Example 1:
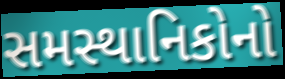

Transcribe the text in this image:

સમસ્થાનિકોનો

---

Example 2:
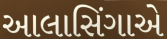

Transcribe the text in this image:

આલાસિંગાએ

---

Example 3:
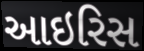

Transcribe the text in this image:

આઇરિસ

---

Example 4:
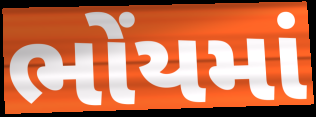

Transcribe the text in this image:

ભોંયમાં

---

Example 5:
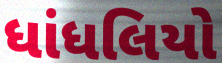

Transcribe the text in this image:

ધાંધલિયો